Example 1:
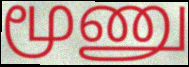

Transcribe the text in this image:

மூணு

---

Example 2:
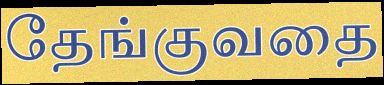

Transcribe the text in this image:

தேங்குவதை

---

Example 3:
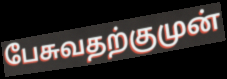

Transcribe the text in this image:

பேசுவதற்குமுன்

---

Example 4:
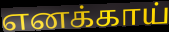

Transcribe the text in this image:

எனக்காய்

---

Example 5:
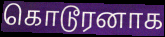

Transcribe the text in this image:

கொடூரனாக